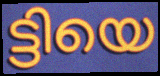
ട്ടിയെ